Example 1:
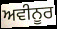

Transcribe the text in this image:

ਅਵੀਨੂਰ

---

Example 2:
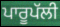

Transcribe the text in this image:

ਪਾਰੂਪੱਲੀ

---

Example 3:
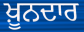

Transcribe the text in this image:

ਖ਼ੂਨਦਾਰ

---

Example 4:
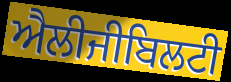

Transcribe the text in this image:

ਐਲੀਜੀਬਿਲਟੀ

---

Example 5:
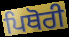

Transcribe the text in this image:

ਪਿਥੋਰੀ